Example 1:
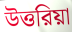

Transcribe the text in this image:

উত্তরিয়া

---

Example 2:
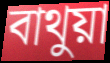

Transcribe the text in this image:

বাথুয়া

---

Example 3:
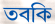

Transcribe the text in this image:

তবকি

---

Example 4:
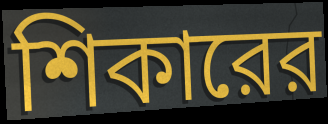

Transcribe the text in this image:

শিকারের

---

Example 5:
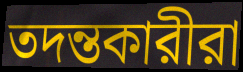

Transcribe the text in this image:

তদন্তকারীরা